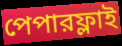
পেপারফ্লাই